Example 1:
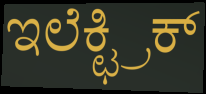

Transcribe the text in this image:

ಇಲೆಕ್ಟ್ರಿಕ್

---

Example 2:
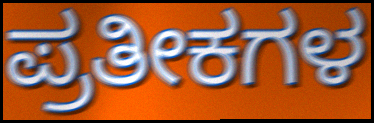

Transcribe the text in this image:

ಪ್ರತೀಕಗಳ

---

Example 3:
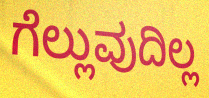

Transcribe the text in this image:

ಗೆಲ್ಲುವುದಿಲ್ಲ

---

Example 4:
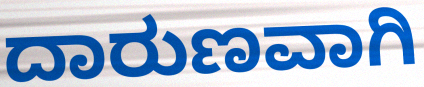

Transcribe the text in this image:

ದಾರುಣವಾಗಿ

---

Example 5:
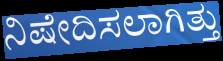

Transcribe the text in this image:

ನಿಷೇದಿಸಲಾಗಿತ್ತು